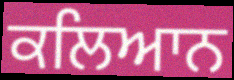
ਕਲਿਆਨ